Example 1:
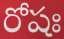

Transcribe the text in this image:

రోషః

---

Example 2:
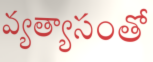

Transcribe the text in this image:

వ్యత్యాసంతో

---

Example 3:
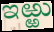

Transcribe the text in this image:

ఇఱ్ఱు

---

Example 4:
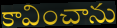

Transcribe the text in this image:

కావించాను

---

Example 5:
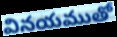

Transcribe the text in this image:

వినయముతో